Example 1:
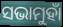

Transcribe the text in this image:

ସଭାମୁହାଁ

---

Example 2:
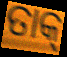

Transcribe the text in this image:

ତାକ୍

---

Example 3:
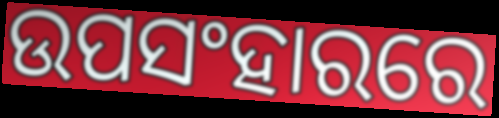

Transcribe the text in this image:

ଉପସଂହାରରେ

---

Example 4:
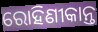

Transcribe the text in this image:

ରୋହିଣୀକାନ୍ତ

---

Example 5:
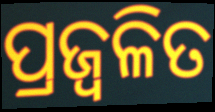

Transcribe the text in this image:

ପ୍ରଜ୍ୱଳିତ